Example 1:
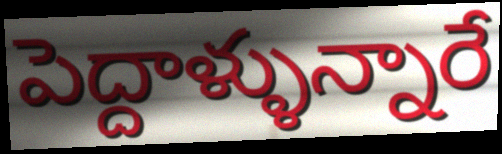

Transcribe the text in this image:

పెద్దాళ్ళున్నారే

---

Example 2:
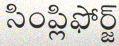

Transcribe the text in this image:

సింప్లిఫోర్జ్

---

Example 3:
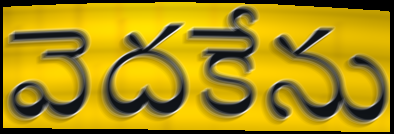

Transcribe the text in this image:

వెదకేను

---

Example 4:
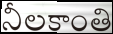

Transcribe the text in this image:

నీలకాంతి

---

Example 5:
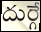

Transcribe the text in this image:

దుర్గే